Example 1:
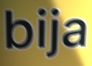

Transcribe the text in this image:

bija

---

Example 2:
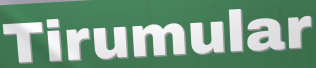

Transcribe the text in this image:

Tirumular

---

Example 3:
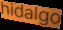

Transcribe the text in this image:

hidalgo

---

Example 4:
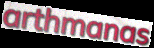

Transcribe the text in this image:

arthmanas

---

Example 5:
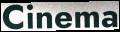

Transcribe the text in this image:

Cinema